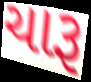
ચારૂ